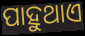
ପାହୁଥାଏ